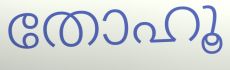
തോഹൂ